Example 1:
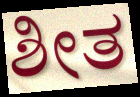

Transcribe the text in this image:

ಶೀತ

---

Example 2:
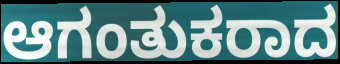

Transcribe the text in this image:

ಆಗಂತುಕರಾದ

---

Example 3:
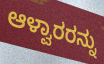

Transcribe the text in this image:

ಆಳ್ವಾರರನ್ನು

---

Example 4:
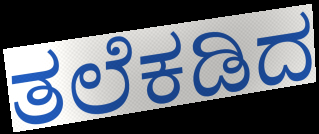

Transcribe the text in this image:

ತಲೆಕಡಿದ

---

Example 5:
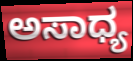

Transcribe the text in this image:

ಅಸಾಧ್ಯ